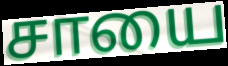
சாயை